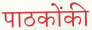
पाठकोंकी